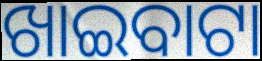
ଖାଇବାଟା